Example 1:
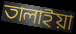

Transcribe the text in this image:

তালাইয়া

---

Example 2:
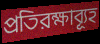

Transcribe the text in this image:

প্রতিরক্ষাব্যূহ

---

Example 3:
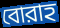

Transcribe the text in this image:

বোরাহ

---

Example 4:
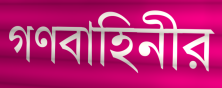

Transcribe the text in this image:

গণবাহিনীর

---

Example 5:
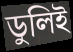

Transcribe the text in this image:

ডুলিই